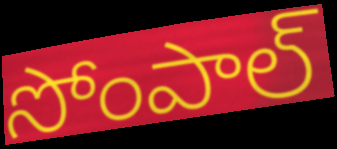
సోంపాల్